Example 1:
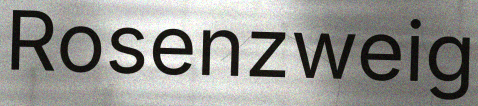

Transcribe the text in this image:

Rosenzweig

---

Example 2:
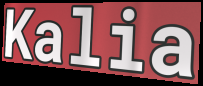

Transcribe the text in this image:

Kalia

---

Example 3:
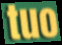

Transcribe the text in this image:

tuo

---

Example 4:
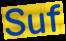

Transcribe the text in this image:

Suf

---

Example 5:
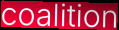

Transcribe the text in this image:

coalition